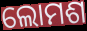
ଲୋମଶ